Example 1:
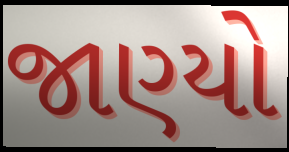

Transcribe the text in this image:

જાણ્યો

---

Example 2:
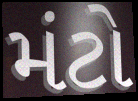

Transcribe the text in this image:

મંટો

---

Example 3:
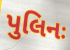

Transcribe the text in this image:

પુલિનઃ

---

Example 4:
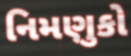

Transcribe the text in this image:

નિમણુકો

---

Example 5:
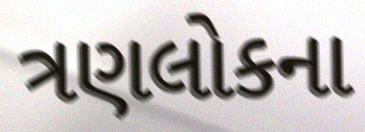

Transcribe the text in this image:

ત્રણલોકના